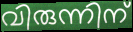
വിരുന്നിന്